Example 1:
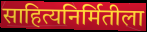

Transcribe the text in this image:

साहित्यनिर्मितीला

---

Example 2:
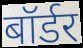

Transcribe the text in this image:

बॉर्डर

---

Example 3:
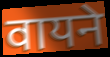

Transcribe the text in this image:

वायने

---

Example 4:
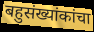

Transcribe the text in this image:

बहुसंख्यांकांचा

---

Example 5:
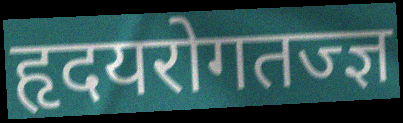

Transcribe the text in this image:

हृदयरोगतज्ज्ञ